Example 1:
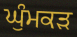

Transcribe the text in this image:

ਘੁੰਮਕੜ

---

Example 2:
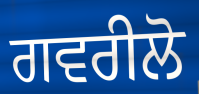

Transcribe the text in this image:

ਗਵਰੀਲੋ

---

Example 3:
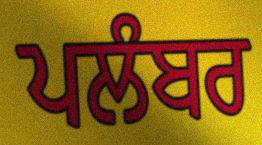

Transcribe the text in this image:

ਪਲੰਬਰ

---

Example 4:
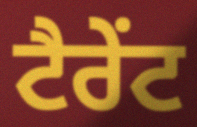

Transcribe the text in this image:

ਟੈਰੇਂਟ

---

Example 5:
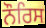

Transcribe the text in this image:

ਨੌਰਿਸ